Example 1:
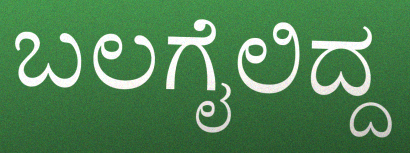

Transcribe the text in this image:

ಬಲಗೈಲಿದ್ದ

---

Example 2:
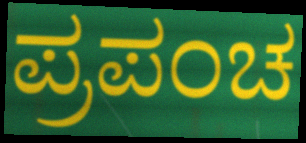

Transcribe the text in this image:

ಪ್ರಪಂಚ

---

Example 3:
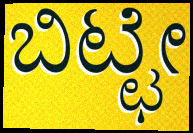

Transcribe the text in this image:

ಬಿಟ್ಟೇ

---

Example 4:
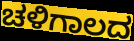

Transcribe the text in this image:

ಚಳಿಗಾಲದ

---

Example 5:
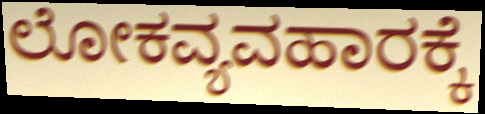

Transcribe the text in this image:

ಲೋಕವ್ಯವಹಾರಕ್ಕೆ